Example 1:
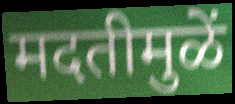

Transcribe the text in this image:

मदतीमुळें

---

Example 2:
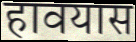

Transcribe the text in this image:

हावयास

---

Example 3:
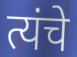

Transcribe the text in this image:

त्यंचे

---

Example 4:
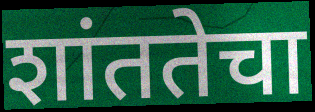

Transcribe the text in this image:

शांततेचा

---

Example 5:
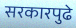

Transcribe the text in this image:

सरकारपुढे